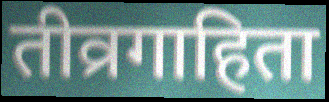
तीव्रगाहिता